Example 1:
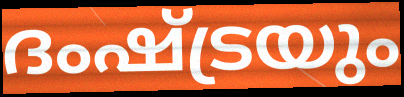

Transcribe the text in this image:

ദംഷ്ട്രയും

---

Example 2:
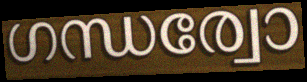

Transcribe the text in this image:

ഗന്ധര്വോ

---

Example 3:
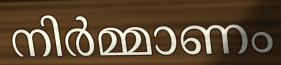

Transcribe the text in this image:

നിർമ്മാണം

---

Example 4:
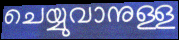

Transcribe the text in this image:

ചെയ്യുവാനുള്ള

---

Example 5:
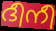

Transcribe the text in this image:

ദീനീ